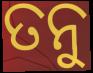
ତନୁ